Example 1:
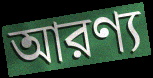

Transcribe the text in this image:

আরণ্য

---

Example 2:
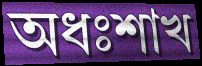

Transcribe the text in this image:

অধঃশাখ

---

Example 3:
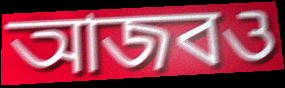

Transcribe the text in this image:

আজবও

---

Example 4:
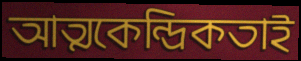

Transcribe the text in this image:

আত্মকেন্দ্রিকতাই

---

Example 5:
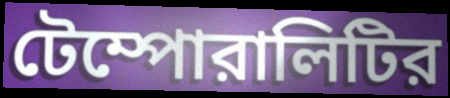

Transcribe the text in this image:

টেম্পোরালিটির